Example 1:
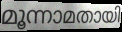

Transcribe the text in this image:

മൂന്നാമതായി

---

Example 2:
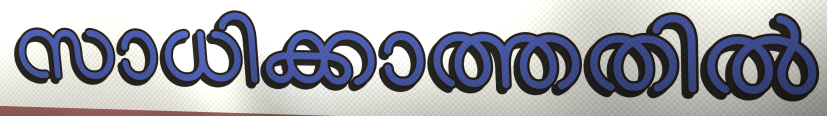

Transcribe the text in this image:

സാധിക്കാത്തതിൽ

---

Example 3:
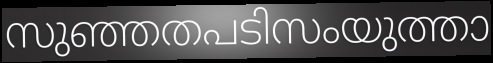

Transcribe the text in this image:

സുഞ്ഞതപടിസംയുത്താ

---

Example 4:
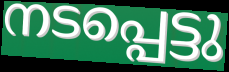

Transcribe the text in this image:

നടപ്പെട്ടു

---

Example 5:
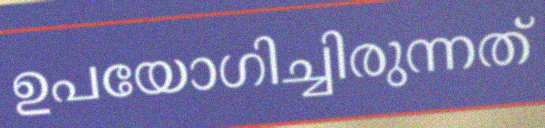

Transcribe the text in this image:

ഉപയോഗിച്ചിരുന്നത്